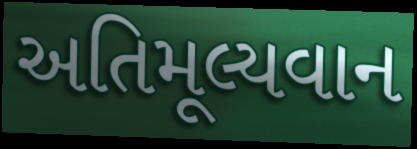
અતિમૂલ્યવાન